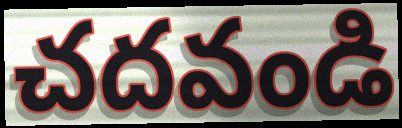
చదవండి